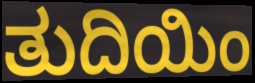
ತುದಿಯಿಂ